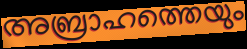
അബ്രാഹത്തെയും